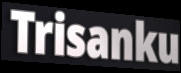
Trisanku